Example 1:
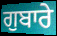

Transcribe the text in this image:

ਗੁਬਾਰੇ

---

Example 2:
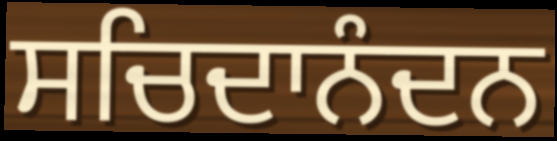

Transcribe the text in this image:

ਸਚਿਦਾਨੰਦਨ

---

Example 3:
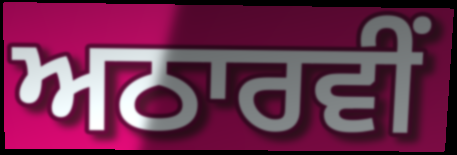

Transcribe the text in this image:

ਅਠਾਰਵੀਂ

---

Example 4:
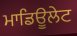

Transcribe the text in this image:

ਮਾਡਿਊਲੇਟ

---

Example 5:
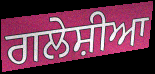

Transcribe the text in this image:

ਗਲੇਸ਼ੀਆ